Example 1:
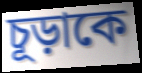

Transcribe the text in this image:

চূড়াকে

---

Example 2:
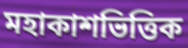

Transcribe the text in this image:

মহাকাশভিত্তিক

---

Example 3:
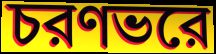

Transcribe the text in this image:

চরণভরে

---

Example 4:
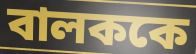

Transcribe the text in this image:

বালককে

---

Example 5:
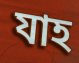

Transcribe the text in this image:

যাহ